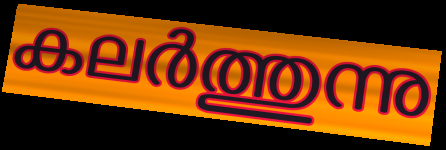
കലർത്തുന്നു